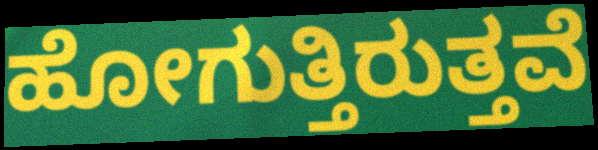
ಹೋಗುತ್ತಿರುತ್ತವೆ